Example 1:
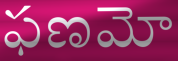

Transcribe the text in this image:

ఫణమో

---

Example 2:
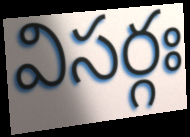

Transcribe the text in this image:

విసర్గః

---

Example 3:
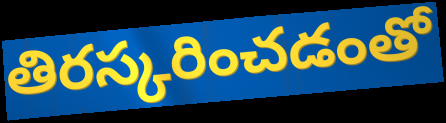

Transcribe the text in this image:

తిరస్కరించడంతో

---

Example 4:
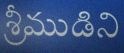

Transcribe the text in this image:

శ్రీముడిని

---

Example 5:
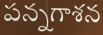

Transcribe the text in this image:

పన్నగాశన